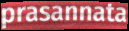
prasannata